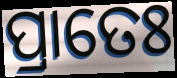
ପ୍ରାତେଃ